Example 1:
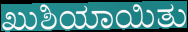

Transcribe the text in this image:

ಖುಶಿಯಾಯಿತು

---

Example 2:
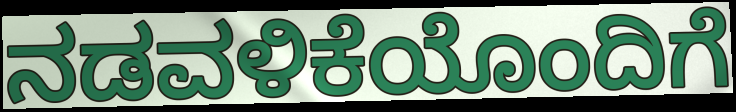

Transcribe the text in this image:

ನಡವಳಿಕೆಯೊಂದಿಗೆ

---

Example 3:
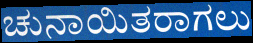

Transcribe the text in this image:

ಚುನಾಯಿತರಾಗಲು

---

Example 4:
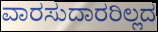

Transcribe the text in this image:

ವಾರಸುದಾರರಿಲ್ಲದ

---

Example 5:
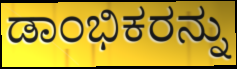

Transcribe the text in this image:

ಡಾಂಭಿಕರನ್ನು